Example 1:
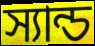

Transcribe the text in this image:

স্যান্ড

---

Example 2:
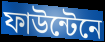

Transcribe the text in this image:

ফাউন্টেনে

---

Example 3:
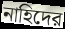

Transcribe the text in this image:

নাহিদের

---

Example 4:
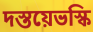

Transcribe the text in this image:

দস্তয়েভস্কি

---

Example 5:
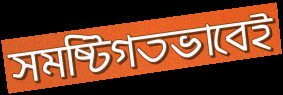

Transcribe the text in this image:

সমষ্টিগতভাবেই